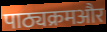
पाठ्यक्रमऔर